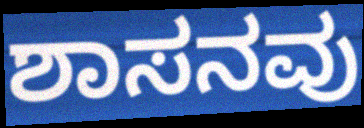
ಶಾಸನವು